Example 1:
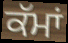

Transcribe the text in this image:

ਕੱਮਾਂ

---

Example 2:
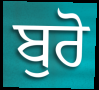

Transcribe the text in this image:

ਬੁਰੋ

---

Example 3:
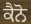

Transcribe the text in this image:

ਕੈਨੋ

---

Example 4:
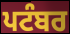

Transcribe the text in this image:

ਪਟੰਬਰ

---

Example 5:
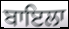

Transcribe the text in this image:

ਬਾਇਲਾ